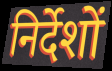
निर्देशों